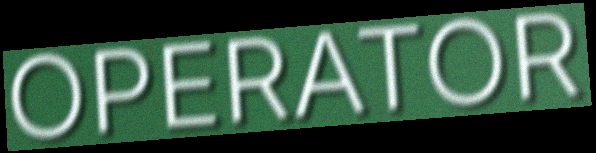
OPERATOR